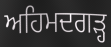
ਅਹਿਮਦਗੜ੍ਹ